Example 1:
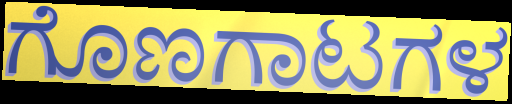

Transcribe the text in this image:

ಗೊಣಗಾಟಗಳ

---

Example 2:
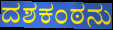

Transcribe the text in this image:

ದಶಕಂಠನು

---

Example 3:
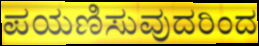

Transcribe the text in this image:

ಪಯಣಿಸುವುದರಿಂದ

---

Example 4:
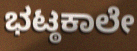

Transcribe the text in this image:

ಭಟ್ಠಕಾಲೇ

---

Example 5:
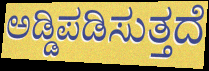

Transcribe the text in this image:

ಅಡ್ಡಿಪಡಿಸುತ್ತದೆ